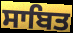
ਸਾਬਿਤ